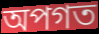
অপগত